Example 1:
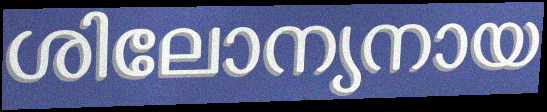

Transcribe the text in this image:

ശിലോന്യനായ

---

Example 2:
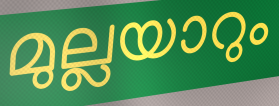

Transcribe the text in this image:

മുല്ലയാറും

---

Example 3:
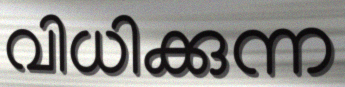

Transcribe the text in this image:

വിധിക്കുന്ന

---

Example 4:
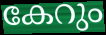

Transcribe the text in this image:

കേറും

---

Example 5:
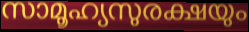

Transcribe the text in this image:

സാമൂഹ്യസുരക്ഷയും